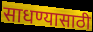
साधण्यासाठी